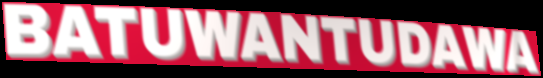
BATUWANTUDAWA